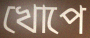
খোপে